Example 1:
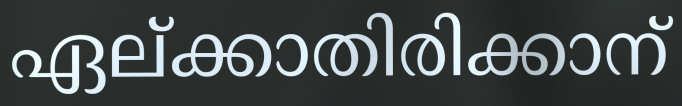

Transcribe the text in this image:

ഏല്ക്കാതിരിക്കാന്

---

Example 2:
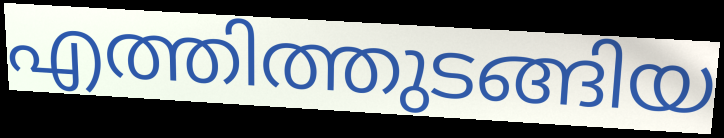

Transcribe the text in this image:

എത്തിത്തുടങ്ങിയ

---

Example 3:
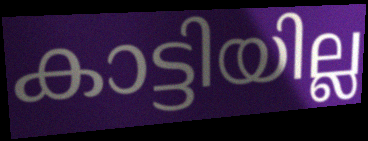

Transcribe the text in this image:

കാട്ടിയില്ല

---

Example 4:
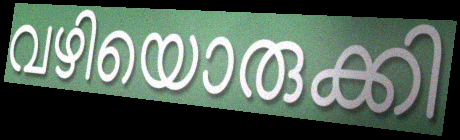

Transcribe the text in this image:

വഴിയൊരുക്കി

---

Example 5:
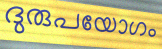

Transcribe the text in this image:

ദുരുപയോഗം